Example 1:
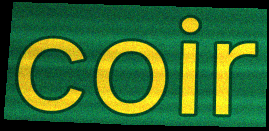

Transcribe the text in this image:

coir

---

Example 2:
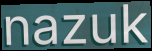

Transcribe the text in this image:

nazuk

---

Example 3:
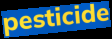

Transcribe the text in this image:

pesticide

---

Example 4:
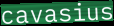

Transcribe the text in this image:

cavasius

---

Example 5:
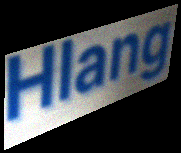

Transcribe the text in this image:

Hlang